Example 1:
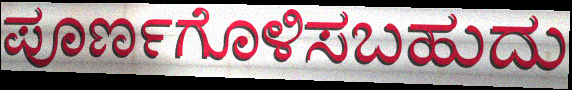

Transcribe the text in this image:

ಪೂರ್ಣಗೊಳಿಸಬಹುದು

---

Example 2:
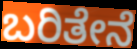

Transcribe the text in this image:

ಬರಿತೇನೆ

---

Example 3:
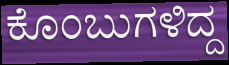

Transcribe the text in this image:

ಕೊಂಬುಗಳಿದ್ದ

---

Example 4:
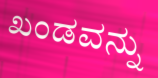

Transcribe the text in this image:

ಖಂಡವನ್ನು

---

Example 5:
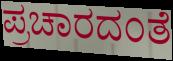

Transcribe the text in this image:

ಪ್ರಚಾರದಂತೆ